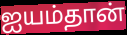
ஐயம்தான்